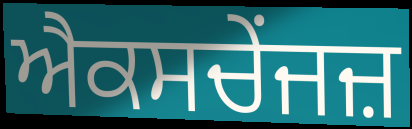
ਐਕਸਚੇਂਜਜ਼